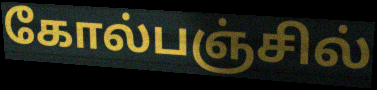
கோல்பஞ்சில்